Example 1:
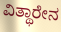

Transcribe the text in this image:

ವಿತ್ಥಾರೇನ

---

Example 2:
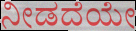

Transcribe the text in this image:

ನೀಡದೆಯೇ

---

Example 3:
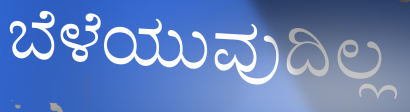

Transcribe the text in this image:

ಬೆಳೆಯುವುದಿಲ್ಲ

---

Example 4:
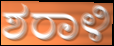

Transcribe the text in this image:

ಶರಾಳಿ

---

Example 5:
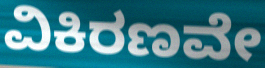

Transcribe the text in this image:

ವಿಕಿರಣವೇ